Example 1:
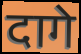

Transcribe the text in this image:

दागे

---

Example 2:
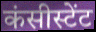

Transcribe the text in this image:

कंसीस्टेंट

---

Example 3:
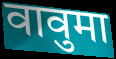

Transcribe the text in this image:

वावुमा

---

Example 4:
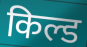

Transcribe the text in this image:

किल्ड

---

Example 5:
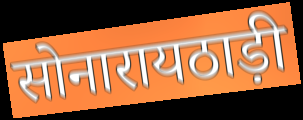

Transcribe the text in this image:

सोनारायठाड़ी